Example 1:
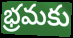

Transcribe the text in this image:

భ్రమకు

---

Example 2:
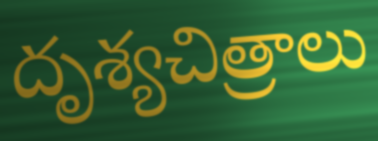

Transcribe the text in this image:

దృశ్యచిత్రాలు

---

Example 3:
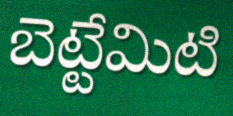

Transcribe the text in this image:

బెట్టేమిటి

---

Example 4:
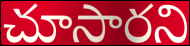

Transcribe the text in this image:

చూసారని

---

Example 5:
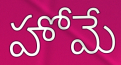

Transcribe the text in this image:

హోమే